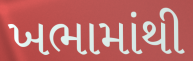
ખભામાંથી